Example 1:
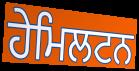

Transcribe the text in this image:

ਹੇਮਿਲਟਨ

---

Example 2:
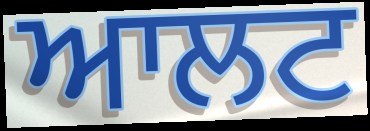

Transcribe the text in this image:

ਆਲਟ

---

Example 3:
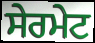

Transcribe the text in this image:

ਸੇਰਮੇਟ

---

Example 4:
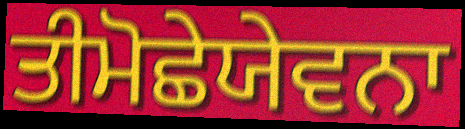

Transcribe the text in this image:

ਤੀਮੋਛੇਯੇਵਨਾ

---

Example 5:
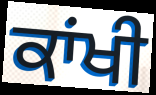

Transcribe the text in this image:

ਕਾਂਖੀ